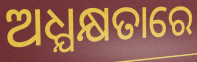
ଅଧ୍ଯକ୍ଷତାରେ